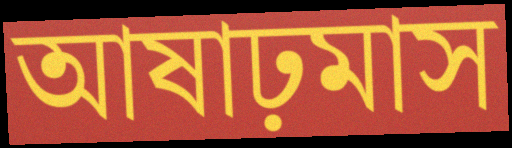
আষাঢ়মাস